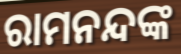
ରାମନନ୍ଦଙ୍କ